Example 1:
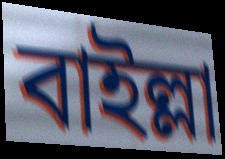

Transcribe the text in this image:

বাইল্লা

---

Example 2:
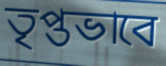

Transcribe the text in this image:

তৃপ্তভাবে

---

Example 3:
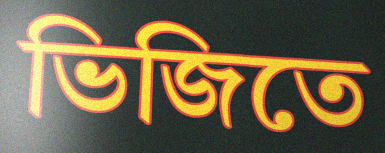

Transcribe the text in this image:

ভিজিতে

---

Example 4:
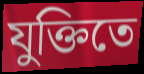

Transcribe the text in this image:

যুক্তিতে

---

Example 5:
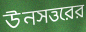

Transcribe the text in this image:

উনসত্তরের